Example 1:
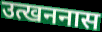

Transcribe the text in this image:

उत्खननास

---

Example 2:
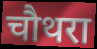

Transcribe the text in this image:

चौथरा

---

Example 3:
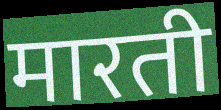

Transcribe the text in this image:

मारती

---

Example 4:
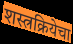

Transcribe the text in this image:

शस्त्रक्रियेचा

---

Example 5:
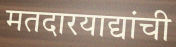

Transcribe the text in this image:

मतदारयाद्यांची